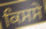
ਕਿਸਸੇ